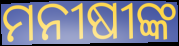
ମନୀଷୀଙ୍କ